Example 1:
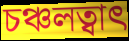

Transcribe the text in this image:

চঞ্চলত্বাৎ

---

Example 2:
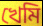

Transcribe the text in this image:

খেমি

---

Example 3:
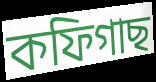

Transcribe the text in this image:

কফিগাছ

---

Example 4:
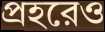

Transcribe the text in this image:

প্রহরেও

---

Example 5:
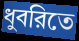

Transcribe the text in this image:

ধুবরিতে